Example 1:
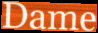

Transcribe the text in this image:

Dame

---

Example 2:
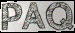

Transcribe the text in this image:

PAQ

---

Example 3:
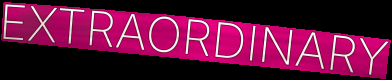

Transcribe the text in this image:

EXTRAORDINARY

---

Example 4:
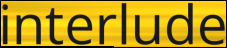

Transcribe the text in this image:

interlude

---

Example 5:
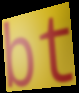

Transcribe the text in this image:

bt